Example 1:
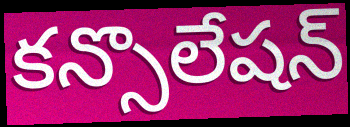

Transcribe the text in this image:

కన్సొలేషన్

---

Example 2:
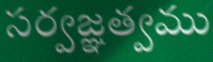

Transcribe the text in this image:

సర్వజ్ఞత్వము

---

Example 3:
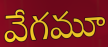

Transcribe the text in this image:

వేగమూ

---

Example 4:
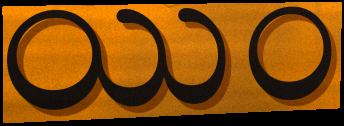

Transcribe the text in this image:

యిం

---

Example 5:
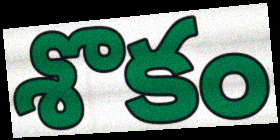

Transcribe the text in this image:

శొకం